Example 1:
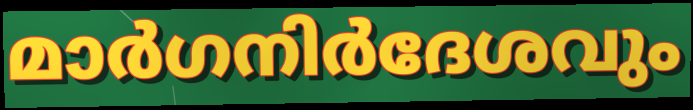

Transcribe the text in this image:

മാർഗനിർദേശവും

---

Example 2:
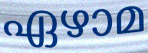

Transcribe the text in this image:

ഏഴാമ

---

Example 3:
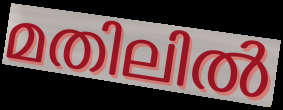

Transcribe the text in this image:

മതിലിൽ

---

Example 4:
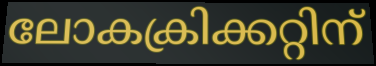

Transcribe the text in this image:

ലോകക്രിക്കറ്റിന്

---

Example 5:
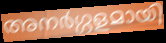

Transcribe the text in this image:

അനർഗ്ഗളമായി